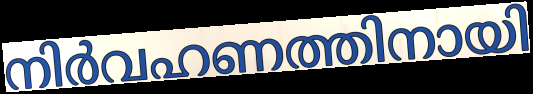
നിർവഹണത്തിനായി